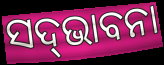
ସଦ୍‌ଭାବନା